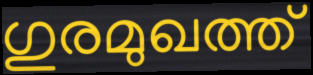
ഗുരമുഖത്ത്